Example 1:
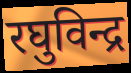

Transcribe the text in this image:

रघुविन्द्र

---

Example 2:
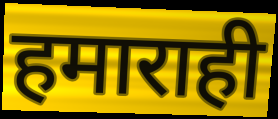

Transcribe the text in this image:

हमाराही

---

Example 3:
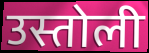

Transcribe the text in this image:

उस्तोली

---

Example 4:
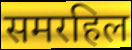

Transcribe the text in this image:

समरहिल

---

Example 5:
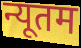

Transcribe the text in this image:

न्यूतम